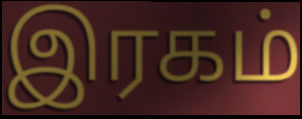
இரகம்